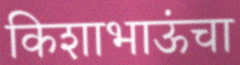
किशाभाऊंचा